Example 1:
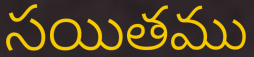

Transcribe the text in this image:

సయితము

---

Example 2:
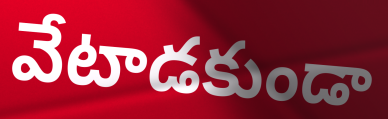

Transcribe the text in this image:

వేటాడకుండా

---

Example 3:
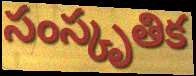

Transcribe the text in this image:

సంస్కృతిక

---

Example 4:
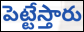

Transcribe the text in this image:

పెట్టేస్తారు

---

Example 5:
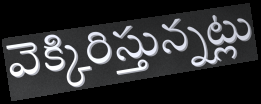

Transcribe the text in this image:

వెక్కిరిస్తున్నట్లు